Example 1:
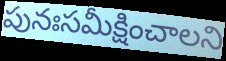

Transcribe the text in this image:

పునఃసమీక్షించాలని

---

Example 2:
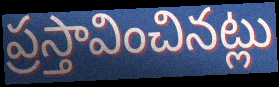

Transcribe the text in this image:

ప్రస్తావించినట్లు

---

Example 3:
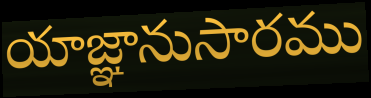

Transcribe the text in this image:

యాజ్ఞానుసారము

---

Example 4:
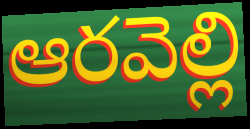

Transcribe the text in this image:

ఆరవెల్లి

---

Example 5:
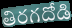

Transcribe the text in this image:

తిరగదోడి